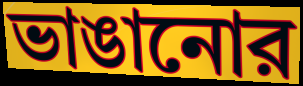
ভাঙানোর